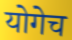
योगेच